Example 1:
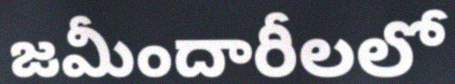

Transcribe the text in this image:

జమీందారీలలో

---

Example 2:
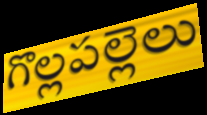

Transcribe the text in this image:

గొల్లపల్లెలు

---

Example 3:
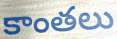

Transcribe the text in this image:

కాంతలు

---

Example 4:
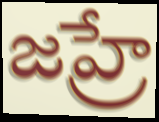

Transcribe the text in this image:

జహ్రే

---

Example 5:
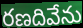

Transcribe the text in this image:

రణదివేను